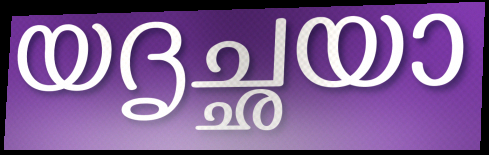
യദൃച്ഛയാ